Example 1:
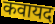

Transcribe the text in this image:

कवायद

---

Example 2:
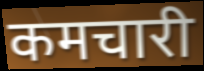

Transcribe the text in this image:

कमचारी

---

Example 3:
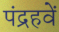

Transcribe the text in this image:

पंद्रहवें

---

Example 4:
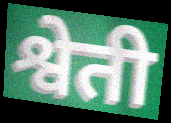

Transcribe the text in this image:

श्वेती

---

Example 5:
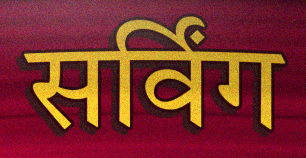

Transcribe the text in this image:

सर्विंग